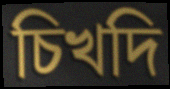
চিখদি